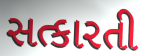
સત્કારતી